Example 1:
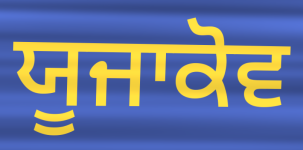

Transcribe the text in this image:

ਯੂਜਾਕੋਵ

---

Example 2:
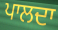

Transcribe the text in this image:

ਪਾਲਦਾ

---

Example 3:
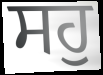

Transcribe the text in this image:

ਸਹੁ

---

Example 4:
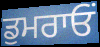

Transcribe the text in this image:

ਡੁਮਰਾਓਂ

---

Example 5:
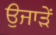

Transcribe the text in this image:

ਉਜਾੜੇਂ